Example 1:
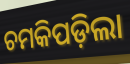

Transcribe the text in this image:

ଚମକିପଡ଼ିଲା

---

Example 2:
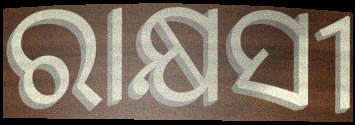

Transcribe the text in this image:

ରାକ୍ଷସୀ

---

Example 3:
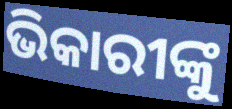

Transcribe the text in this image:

ଭିକାରୀଙ୍କୁ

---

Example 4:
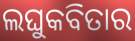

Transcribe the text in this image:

ଲଘୁକବିତାର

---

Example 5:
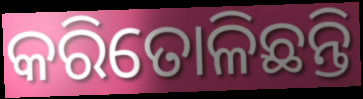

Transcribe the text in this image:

କରିତୋଳିଛନ୍ତି